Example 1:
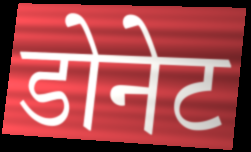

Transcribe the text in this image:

डोनेट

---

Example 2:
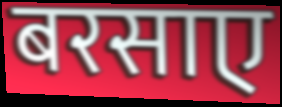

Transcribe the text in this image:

बरसाए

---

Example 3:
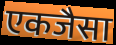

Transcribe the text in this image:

एकजैसा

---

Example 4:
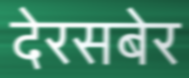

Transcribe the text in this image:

देरसबेर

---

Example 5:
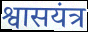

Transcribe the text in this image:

श्वासयंत्र